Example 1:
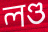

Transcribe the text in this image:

লণ্ড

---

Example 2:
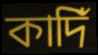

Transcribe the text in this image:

কাদিঁ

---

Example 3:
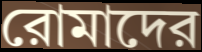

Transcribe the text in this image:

রোমাদের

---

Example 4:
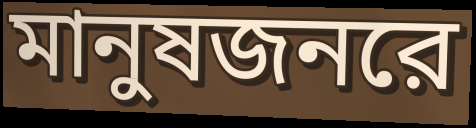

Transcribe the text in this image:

মানুষজনরে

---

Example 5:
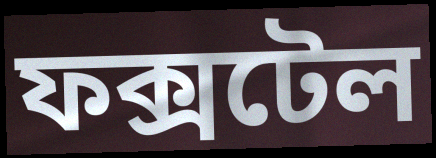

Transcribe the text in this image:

ফক্সটেল